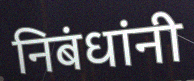
निबंधांनी